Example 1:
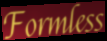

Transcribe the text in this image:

Formless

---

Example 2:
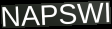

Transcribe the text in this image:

NAPSWI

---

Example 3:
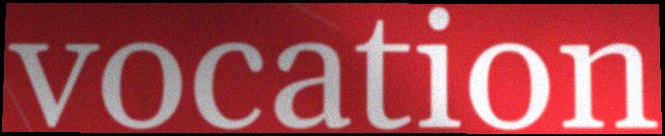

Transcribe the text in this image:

vocation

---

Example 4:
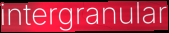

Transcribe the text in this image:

intergranular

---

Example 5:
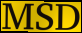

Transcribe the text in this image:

MSD